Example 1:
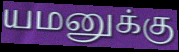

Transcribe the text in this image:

யமனுக்கு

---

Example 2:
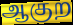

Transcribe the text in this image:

ஆகுற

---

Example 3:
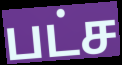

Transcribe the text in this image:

பட்ச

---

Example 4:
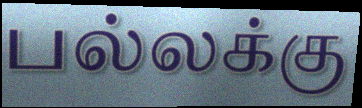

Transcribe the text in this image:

பல்லக்கு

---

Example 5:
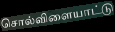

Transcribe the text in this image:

சொல்விளையாட்டு